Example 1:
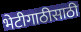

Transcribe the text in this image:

भेटीगाठीसाठी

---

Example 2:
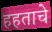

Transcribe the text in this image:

हहताचे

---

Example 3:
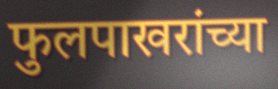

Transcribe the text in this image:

फुलपाखरांच्या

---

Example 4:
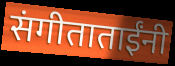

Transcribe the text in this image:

संगीताताईंनी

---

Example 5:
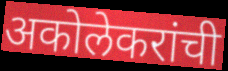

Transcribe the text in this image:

अकोलेकरांची